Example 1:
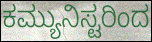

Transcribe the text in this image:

ಕಮ್ಯುನಿಸ್ಟರಿಂದ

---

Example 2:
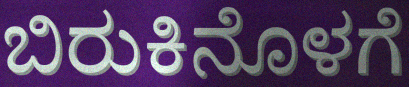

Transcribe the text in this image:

ಬಿರುಕಿನೊಳಗೆ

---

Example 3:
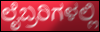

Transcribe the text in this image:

ಲೈಬ್ರರಿಗಳಲ್ಲಿ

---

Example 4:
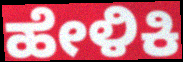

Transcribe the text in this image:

ಹೇಳಿಕಿ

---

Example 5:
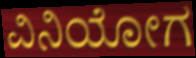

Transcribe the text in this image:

ವಿನಿಯೋಗ